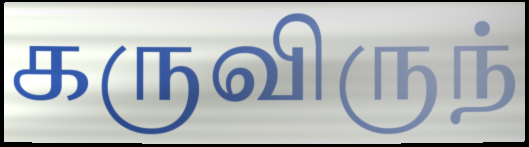
கருவிருந்